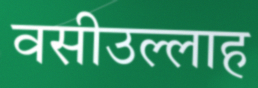
वसीउल्लाह